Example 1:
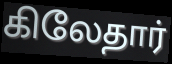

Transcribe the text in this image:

கிலேதார்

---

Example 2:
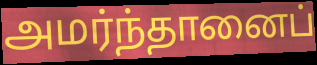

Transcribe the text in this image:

அமர்ந்தானைப்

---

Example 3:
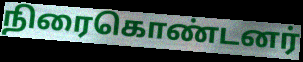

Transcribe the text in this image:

நிரைகொண்டனர்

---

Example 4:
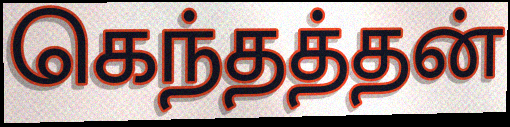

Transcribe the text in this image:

கெந்தத்தன்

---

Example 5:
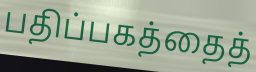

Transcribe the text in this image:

பதிப்பகத்தைத்